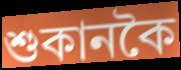
শুকানকৈ